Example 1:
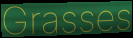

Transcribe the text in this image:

Grasses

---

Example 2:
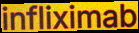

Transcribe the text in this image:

infliximab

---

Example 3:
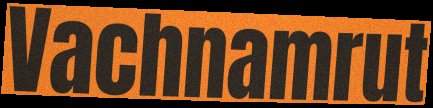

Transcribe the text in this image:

Vachnamrut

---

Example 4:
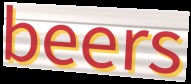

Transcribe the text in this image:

beers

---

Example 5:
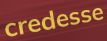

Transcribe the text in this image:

credesse